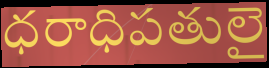
ధరాధిపతులై